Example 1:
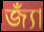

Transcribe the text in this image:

জ্যাঁ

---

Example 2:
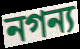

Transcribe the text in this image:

নগন্য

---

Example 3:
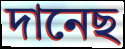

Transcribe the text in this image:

দানেছ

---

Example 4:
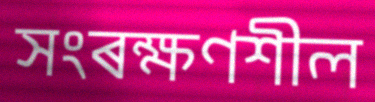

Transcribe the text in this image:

সংৰক্ষণশীল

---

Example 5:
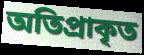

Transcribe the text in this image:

অতিপ্ৰাকৃত